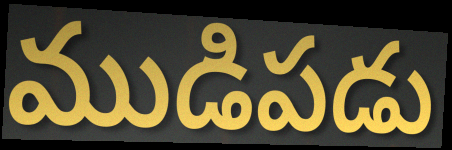
ముడిపడు